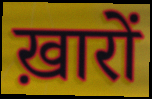
ख़ारों